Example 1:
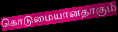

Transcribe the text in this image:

கொடுமையானதாகும்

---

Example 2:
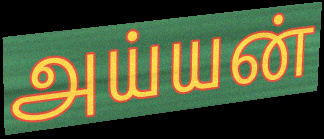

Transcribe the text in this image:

அய்யன்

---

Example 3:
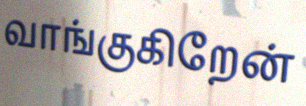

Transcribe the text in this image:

வாங்குகிறேன்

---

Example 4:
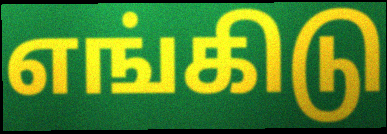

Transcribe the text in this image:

எங்கிடு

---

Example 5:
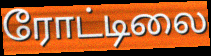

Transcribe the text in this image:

ரோட்டிலை